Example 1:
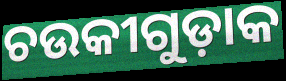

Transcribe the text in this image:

ଚଉକୀଗୁଡ଼ାକ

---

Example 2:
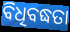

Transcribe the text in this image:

ବିଧିବଦ୍ଧତା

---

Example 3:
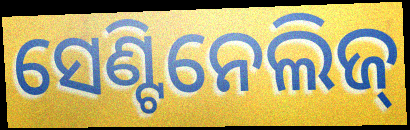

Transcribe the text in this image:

ସେଣ୍ଟିନେଲିଜ୍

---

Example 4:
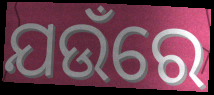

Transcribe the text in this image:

ଯଉଁରେ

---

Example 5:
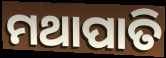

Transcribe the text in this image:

ମଥାପାତି